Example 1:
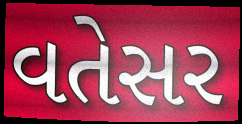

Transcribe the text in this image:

વતેસર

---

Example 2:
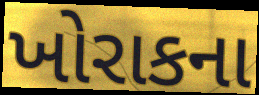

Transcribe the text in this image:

ખોરાકના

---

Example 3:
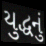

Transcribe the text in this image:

યુદ્ધનું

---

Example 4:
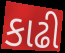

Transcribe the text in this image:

કાઢી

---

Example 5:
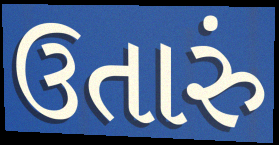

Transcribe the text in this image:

ઉતારું